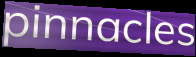
pinnacles